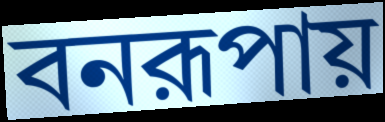
বনরূপায়